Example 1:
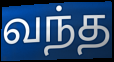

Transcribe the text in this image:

வந்த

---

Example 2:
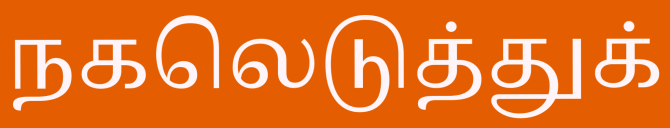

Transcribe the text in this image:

நகலெடுத்துக்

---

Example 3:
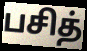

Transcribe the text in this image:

பசித்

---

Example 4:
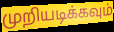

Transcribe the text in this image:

முறியடிக்கவும்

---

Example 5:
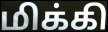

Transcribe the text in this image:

மிக்கி